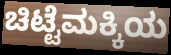
ಚಿಟ್ಟೆಮಕ್ಕಿಯ